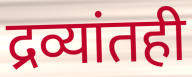
द्रव्यांतही